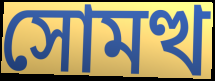
সোমত্থ